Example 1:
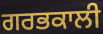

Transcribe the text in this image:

ਗਰਭਕਾਲੀ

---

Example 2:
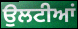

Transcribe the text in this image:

ਉਲਟੀਆਂ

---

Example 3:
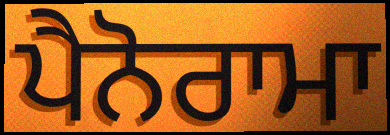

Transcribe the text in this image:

ਪੈਨੋਰਾਮਾ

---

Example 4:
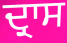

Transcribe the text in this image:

ਦ੍ਰਾਸ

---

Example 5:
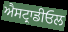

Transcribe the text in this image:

ਐਸਟ੍ਰਾਡੀਓਲ